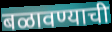
बळावण्याची